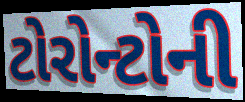
ટોરોન્ટોની